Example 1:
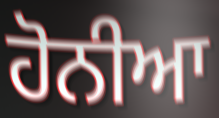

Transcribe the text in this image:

ਹੋਨੀਆ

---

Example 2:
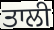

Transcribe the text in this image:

ਤਾਲੀ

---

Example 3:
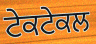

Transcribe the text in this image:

ਟੇਕਟੇਕਲ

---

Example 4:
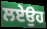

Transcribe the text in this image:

ਲਏਉਹ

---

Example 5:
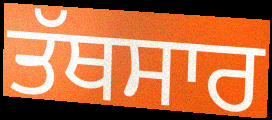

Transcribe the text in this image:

ਤੱਥਸਾਰ